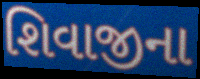
શિવાજીના